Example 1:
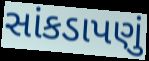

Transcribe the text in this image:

સાંકડાપણું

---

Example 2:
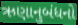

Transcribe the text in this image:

ઋણાનુબંધનો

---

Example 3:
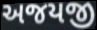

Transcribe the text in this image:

અજયજી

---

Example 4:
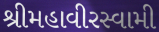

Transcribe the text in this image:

શ્રીમહાવીરસ્વામી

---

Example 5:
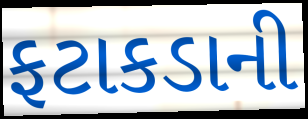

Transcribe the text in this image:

ફટાકડાની